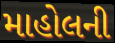
માહોલની